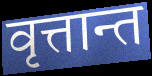
वृत्तान्त